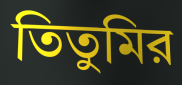
তিতুমির